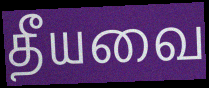
தீயவை